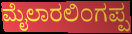
ಮೈಲಾರಲಿಂಗಪ್ಪ